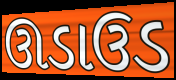
ઊડાઉડ